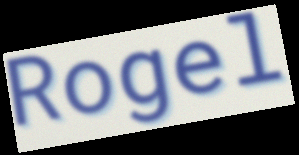
Rogel